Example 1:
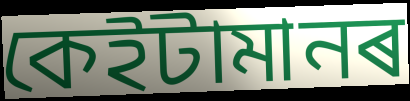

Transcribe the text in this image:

কেইটামানৰ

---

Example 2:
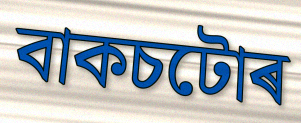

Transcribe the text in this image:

বাকচটোৰ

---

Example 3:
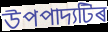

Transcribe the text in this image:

উপপাদ্যটিৰ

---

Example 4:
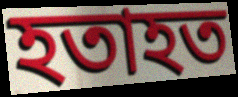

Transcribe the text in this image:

হতাহত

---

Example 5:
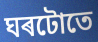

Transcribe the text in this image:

ঘৰটোতে